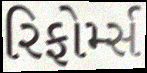
રિફોર્મ્સ